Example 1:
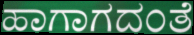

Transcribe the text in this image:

ಹಾಗಾಗದಂತೆ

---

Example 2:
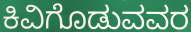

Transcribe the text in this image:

ಕಿವಿಗೊಡುವವರ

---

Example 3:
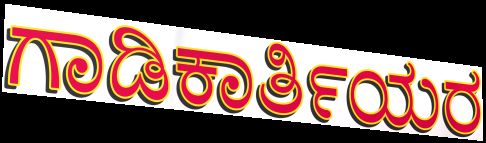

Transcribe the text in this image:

ಗಾಡಿಕಾರ್ತಿಯರ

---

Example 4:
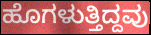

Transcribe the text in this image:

ಹೊಗಳುತ್ತಿದ್ದವು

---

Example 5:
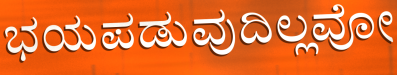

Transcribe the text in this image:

ಭಯಪಡುವುದಿಲ್ಲವೋ